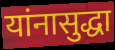
यांनासुद्धा